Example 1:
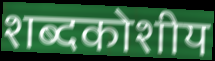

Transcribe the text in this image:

शब्दकोशीय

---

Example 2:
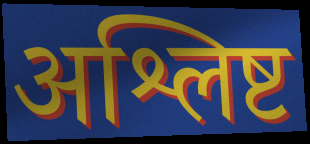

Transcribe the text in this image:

अश्लिष्ट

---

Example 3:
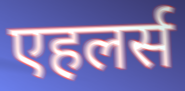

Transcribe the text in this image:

एहलर्स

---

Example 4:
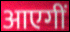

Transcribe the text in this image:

आएगीं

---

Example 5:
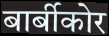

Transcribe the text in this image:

बार्बीकोर